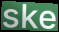
ske